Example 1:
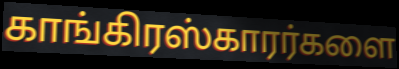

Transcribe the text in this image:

காங்கிரஸ்காரர்களை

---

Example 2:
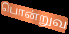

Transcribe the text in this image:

பொன்றுவ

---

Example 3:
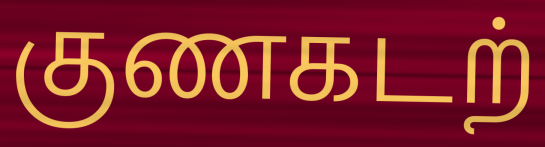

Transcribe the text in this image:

குணகடற்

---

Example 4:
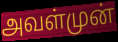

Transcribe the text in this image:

அவள்முன்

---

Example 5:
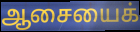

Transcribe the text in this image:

ஆசையைக்